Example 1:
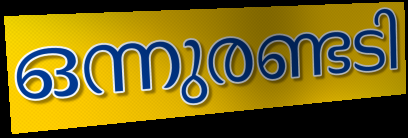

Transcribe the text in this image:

ഒന്നുരണ്ടടി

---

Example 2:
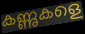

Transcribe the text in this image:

കണ്ണുകളെ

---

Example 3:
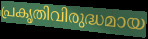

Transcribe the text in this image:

പ്രകൃതിവിരുദ്ധമായ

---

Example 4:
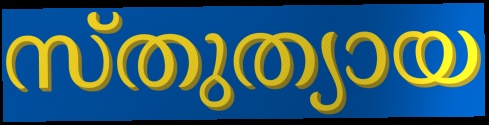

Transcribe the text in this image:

സ്തുത്യായ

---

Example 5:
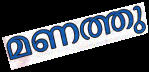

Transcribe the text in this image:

മണത്തു